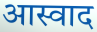
आस्वाद